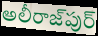
అలీరాజ్‌పుర్